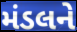
મંડલને